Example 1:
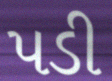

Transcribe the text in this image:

પડી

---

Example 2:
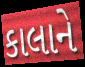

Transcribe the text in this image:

કાલાને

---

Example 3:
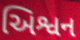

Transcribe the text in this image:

અિશ્વન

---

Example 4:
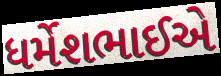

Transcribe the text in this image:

ધર્મેશભાઈએ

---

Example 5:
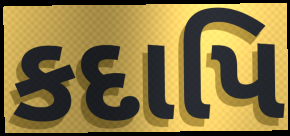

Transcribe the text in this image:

કદાપિ